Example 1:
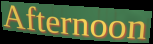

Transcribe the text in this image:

Afternoon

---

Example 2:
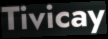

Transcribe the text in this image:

Tivicay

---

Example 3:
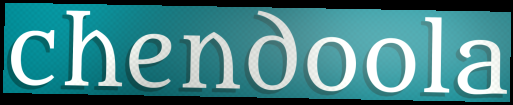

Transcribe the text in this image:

chendoola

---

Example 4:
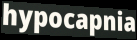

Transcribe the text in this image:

hypocapnia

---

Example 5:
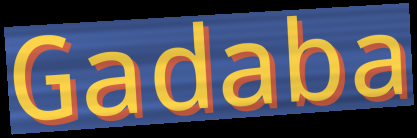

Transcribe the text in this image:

Gadaba